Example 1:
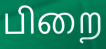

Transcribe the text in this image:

பிறை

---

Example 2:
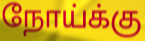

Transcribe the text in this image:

நோய்க்கு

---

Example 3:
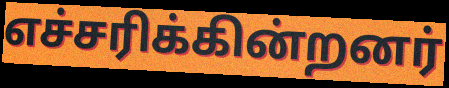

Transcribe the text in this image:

எச்சரிக்கின்றனர்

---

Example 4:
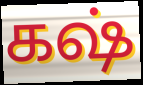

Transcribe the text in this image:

கஷ்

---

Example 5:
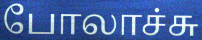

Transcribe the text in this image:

போலாச்சு